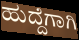
ಹುದ್ದೆಗಾಗಿ